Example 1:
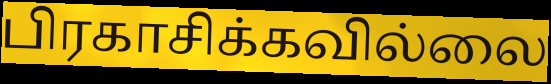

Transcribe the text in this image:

பிரகாசிக்கவில்லை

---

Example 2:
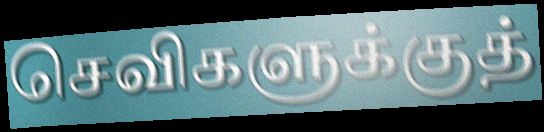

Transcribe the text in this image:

செவிகளுக்குத்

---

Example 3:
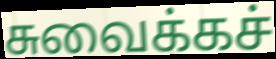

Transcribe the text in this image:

சுவைக்கச்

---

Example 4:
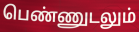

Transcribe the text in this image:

பெண்ணுடலும்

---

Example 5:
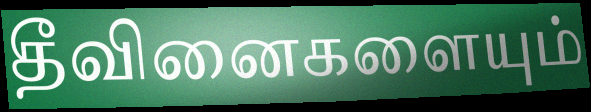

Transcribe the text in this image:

தீவினைகளையும்